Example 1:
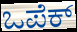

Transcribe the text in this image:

ಒಪೆಕ್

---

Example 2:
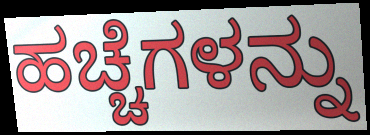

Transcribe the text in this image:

ಹಚ್ಚೆಗಳನ್ನು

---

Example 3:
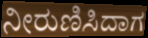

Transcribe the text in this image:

ನೀರುಣಿಸಿದಾಗ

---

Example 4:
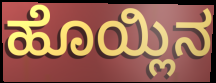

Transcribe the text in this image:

ಹೊಯ್ಲಿನ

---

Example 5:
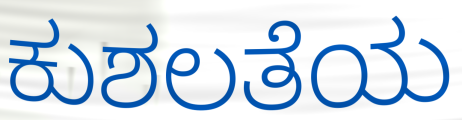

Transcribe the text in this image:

ಕುಶಲತೆಯ